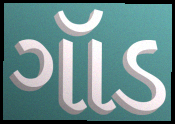
ગૉડ